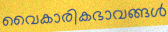
വൈകാരികഭാവങ്ങൾ